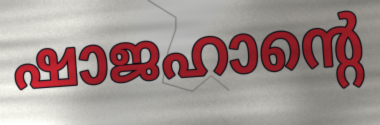
ഷാജഹാന്റെ